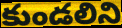
కుండలిని